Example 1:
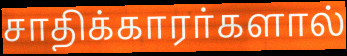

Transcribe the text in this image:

சாதிக்காரர்களால்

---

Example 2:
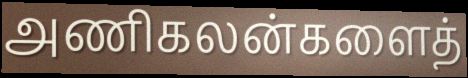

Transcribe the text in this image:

அணிகலன்களைத்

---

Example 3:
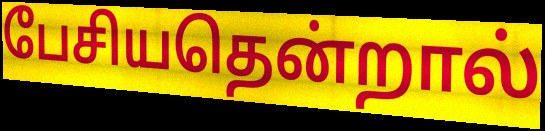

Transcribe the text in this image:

பேசியதென்றால்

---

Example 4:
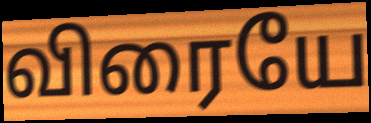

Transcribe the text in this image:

விரையே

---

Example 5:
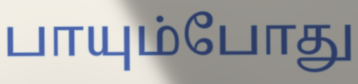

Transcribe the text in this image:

பாயும்போது